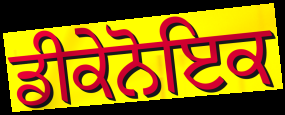
ਡੀਕੇਨੋਇਕ